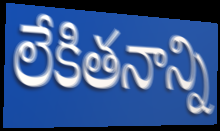
లేకితనాన్ని